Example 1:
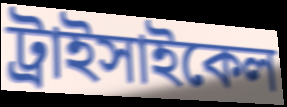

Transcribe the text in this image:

ট্রাইসাইকেল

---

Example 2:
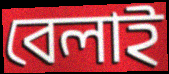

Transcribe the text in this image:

বেলাই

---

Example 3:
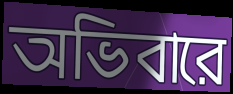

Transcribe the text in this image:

অভিবারে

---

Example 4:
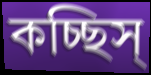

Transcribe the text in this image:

কচ্ছিস্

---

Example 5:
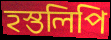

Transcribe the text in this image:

হস্তলিপি